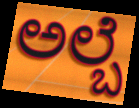
ಅಲ್ಬೆ